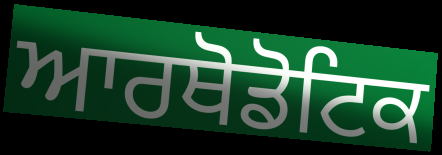
ਆਰਥੋਡੋਟਿਕ